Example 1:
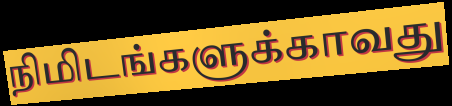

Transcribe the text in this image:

நிமிடங்களுக்காவது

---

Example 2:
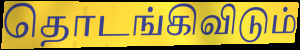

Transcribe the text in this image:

தொடங்கிவிடும்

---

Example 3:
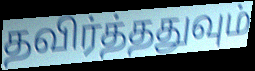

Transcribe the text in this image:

தவிர்த்ததுவும்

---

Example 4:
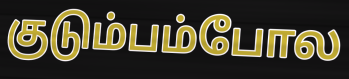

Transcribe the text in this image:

குடும்பம்போல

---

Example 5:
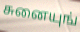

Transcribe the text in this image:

சுனையுங்